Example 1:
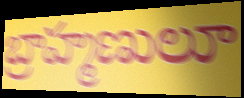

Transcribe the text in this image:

బ్రాహ్మణులూ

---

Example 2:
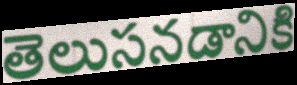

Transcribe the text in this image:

తెలుసనడానికి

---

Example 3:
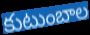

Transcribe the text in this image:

కుటుంబాల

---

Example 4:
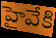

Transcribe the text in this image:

హైవేకి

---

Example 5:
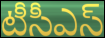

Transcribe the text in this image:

టీసీఎస్